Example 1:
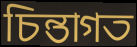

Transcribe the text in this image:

চিন্তাগত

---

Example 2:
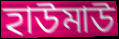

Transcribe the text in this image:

হাউমাউ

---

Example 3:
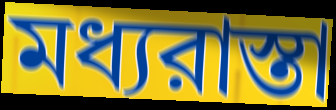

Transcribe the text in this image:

মধ্যরাস্তা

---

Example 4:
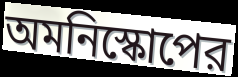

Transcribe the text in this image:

অমনিস্কোপের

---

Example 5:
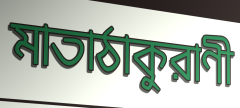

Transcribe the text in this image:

মাতাঠাকুরাণী